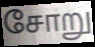
சோறு